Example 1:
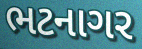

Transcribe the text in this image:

ભટનાગર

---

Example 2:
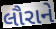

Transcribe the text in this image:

લૌરાને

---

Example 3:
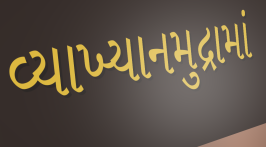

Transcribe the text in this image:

વ્યાખ્યાનમુદ્રામાં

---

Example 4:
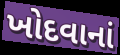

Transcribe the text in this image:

ખોદવાનાં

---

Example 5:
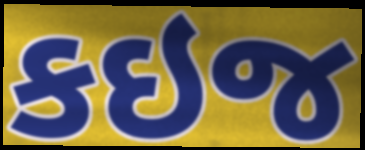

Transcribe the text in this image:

કઇજ